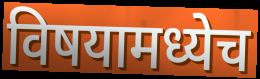
विषयामध्येच